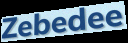
Zebedee